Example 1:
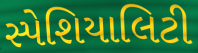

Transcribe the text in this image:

સ્પેશિયાલિટી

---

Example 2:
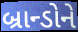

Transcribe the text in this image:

બ્રાન્ડોને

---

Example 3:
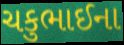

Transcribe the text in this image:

ચકુભાઈના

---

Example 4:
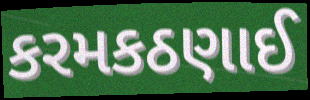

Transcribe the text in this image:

કરમકઠણાઈ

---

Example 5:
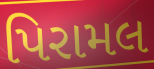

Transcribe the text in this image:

પિરામલ